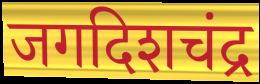
जगदिशचंद्र